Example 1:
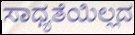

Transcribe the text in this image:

ಸಾಧ್ಯತೆಯಿಲ್ಲದ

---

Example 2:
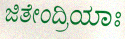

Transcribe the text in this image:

ಜಿತೇಂದ್ರಿಯಾಃ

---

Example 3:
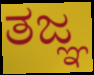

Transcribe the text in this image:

ತಜ್ಞ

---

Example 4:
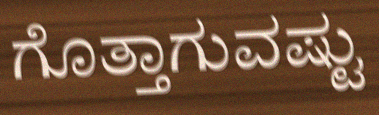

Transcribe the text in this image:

ಗೊತ್ತಾಗುವಷ್ಟು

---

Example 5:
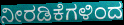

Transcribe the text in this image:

ನೀರಡಿಕೆಗಳಿಂದ